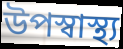
উপস্বাস্থ্য